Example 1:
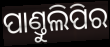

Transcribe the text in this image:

ପାଣ୍ତୁଲିପିର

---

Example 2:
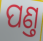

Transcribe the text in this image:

ପଣ୍ତ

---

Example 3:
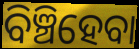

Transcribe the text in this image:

ବିଞ୍ଚିହେବା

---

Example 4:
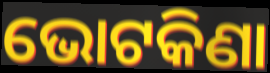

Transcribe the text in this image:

ଭୋଟକିଣା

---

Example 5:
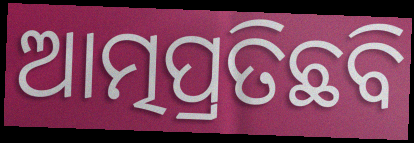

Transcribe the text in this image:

ଆତ୍ମପ୍ରତିଛବି